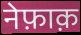
नेफ़ाक़